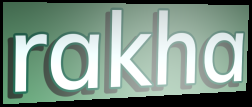
rakha